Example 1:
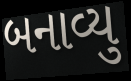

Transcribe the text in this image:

બનાવ્યુ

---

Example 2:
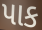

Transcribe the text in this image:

પાક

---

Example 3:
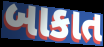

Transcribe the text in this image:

બાકાત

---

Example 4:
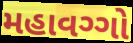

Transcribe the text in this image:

મહાવગ્ગો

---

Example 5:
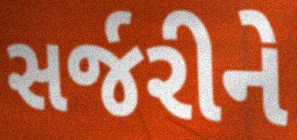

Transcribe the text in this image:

સર્જરીને